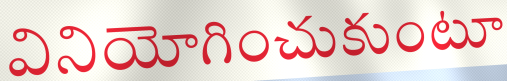
వినియోగించుకుంటూ